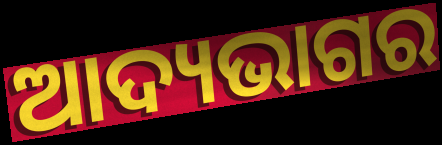
ଆଦ୍ୟଭାଗର